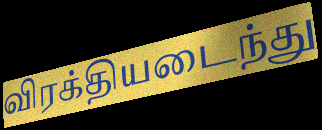
விரக்தியடைந்து